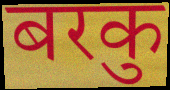
बरकु